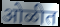
ओळीत